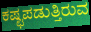
ಕಷ್ಟಪಡುತ್ತಿರುವ